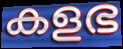
കളഭ